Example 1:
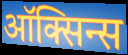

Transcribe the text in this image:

ऑक्सिन्स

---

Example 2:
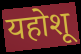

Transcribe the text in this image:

यहोशू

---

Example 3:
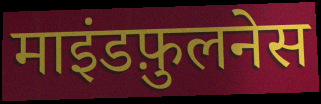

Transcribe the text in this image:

माइंडफ़ुलनेस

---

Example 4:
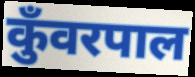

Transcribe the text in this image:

कुँवरपाल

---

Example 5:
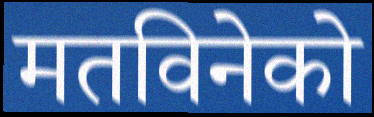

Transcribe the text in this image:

मतविनेको